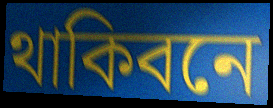
থাকিবনে